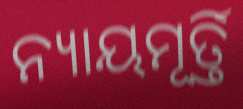
ନ୍ୟାୟମୂର୍ତ୍ତି